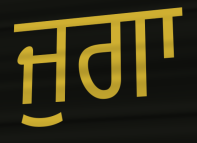
ਜੁਗਾ